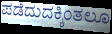
ಪಡೆದುದಕ್ಕಿಂತಲೂ